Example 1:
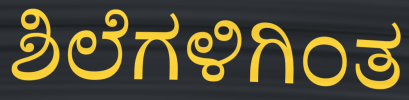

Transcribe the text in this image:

ಶಿಲೆಗಳಿಗಿಂತ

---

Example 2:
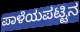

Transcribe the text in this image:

ಪಾಳೆಯಪಟ್ಟಿನ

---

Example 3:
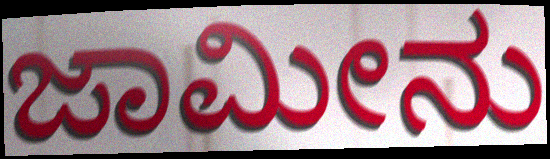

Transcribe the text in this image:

ಜಾಮೀನು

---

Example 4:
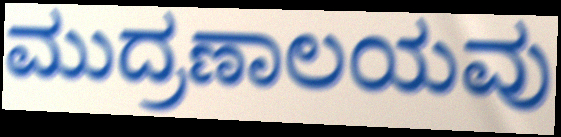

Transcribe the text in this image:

ಮುದ್ರಣಾಲಯವು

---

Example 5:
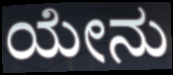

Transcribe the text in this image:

ಯೇನು